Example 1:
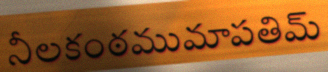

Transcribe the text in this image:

నీలకంఠముమాపతిమ్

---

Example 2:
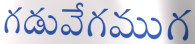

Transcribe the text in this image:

గడువేగముగ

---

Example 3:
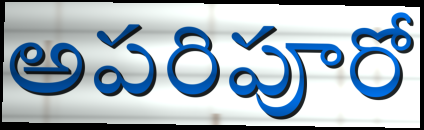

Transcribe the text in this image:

అపరిపూరో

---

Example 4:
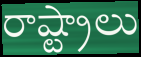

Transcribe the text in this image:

రాష్ట్రాలు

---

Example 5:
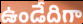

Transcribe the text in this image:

ఉండేదిగా